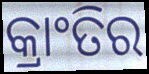
କ୍ରାଂତିର